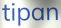
tipan